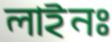
লাইনঃ